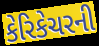
કેરિકેચરની